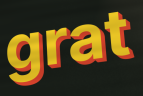
grat